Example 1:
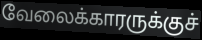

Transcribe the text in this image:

வேலைக்காரருக்குச்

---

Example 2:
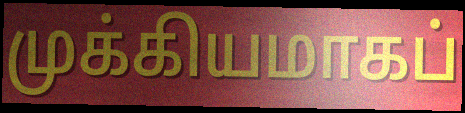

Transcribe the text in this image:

முக்கியமாகப்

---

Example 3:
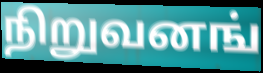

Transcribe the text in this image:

நிறுவனங்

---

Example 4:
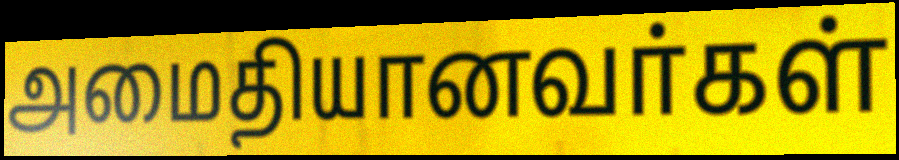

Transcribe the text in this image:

அமைதியானவர்கள்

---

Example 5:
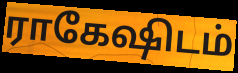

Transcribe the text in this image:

ராகேஷிடம்